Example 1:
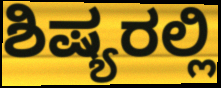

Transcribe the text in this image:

ಶಿಷ್ಯರಲ್ಲಿ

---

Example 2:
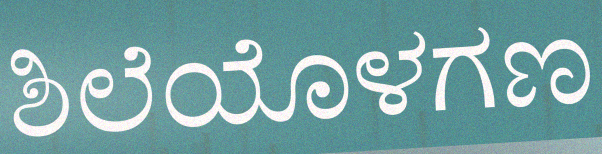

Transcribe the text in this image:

ಶಿಲೆಯೊಳಗಣ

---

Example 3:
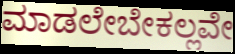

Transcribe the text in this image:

ಮಾಡಲೇಬೇಕಲ್ಲವೇ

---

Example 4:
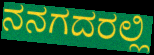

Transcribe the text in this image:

ನನಗದರಲ್ಲಿ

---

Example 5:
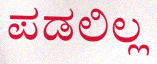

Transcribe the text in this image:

ಪಡಲಿಲ್ಲ